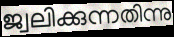
ജ്വലിക്കുന്നതിന്നു